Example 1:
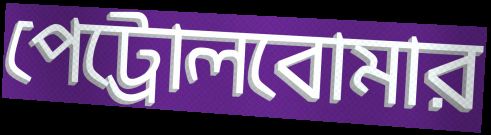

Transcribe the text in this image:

পেট্রোলবোমার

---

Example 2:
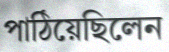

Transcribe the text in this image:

পাঠিয়েছিলেন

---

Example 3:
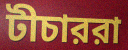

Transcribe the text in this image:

টীচাররা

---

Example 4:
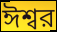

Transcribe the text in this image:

ঈশ্বর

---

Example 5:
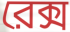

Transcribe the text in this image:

রেক্স